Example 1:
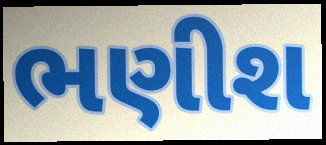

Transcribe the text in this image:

ભણીશ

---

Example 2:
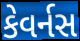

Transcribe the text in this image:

કેવર્નસ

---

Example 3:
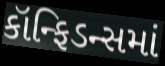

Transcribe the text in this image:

કૉન્ફિડન્સમાં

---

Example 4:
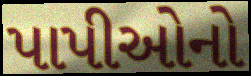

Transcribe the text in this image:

પાપીઓનો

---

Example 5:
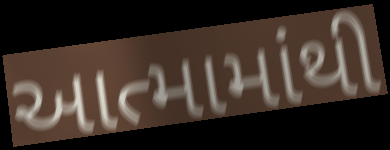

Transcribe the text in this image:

આત્મામાંથી